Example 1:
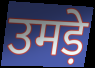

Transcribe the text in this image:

उमड़े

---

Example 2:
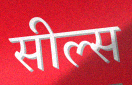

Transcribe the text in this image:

सील्स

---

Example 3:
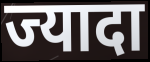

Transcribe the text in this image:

ज्यादा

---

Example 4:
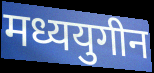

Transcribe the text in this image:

मध्ययुगीन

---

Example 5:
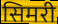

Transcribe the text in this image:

सिमरी